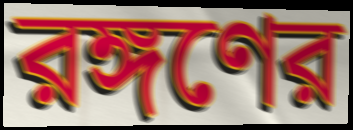
রঙ্গণের